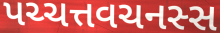
પચ્ચત્તવચનસ્સ